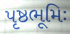
પૃષ્ઠભૂમિઃ